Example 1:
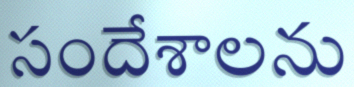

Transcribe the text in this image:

సందేశాలను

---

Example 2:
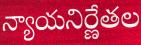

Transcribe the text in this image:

న్యాయనిర్ణేతల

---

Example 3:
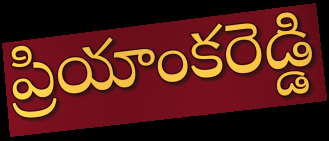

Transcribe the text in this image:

ప్రియాంకరెడ్డి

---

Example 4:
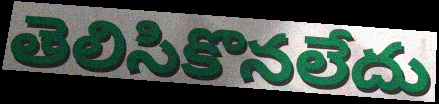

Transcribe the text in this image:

తెలిసికొనలేదు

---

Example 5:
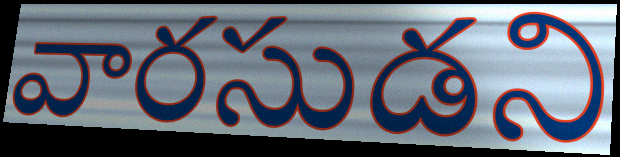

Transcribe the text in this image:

వారసుడని